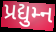
પ્રદ્યુમ્ન